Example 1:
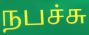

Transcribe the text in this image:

நபச்சு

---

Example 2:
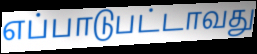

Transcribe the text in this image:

எப்பாடுபட்டாவது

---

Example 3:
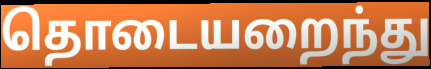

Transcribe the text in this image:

தொடையறைந்து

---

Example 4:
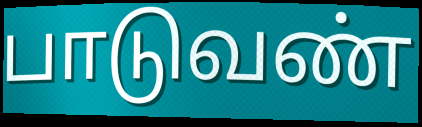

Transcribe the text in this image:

பாடுவண்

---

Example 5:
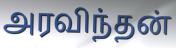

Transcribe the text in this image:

அரவிந்தன்